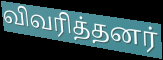
விவரித்தனர்